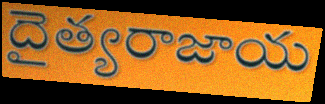
దైత్యరాజాయ